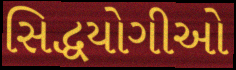
સિદ્ધયોગીઓ